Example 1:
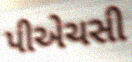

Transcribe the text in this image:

પીએચસી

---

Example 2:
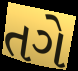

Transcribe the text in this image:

તગે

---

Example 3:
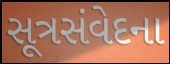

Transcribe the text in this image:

સૂત્રસંવેદના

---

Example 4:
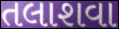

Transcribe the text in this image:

તલાશવા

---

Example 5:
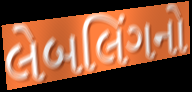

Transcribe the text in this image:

લેબલિંગનો